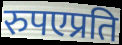
रुपएप्रति